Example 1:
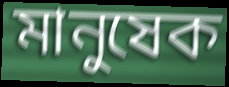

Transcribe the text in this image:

মানুষেক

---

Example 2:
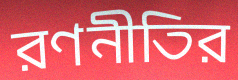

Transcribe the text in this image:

রণনীতির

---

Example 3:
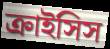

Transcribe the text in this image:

ক্রাইসিস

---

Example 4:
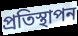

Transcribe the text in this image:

প্রতিস্থাপন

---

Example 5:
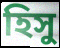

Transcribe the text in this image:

হিসু